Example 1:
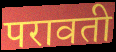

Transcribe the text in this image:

परावती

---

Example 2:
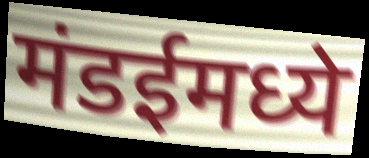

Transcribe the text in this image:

मंडईमध्ये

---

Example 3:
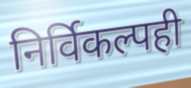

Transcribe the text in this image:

निर्विकल्पही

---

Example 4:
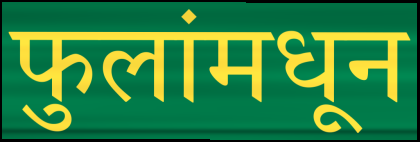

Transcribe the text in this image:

फुलांमधून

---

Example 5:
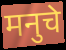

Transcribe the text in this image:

मनुचे